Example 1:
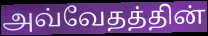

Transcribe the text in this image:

அவ்வேதத்தின்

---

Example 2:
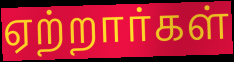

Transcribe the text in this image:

ஏற்றார்கள்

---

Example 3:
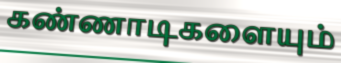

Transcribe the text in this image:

கண்ணாடிகளையும்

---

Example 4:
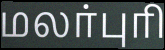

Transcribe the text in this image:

மலர்புரி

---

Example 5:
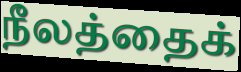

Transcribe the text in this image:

நீலத்தைக்